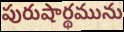
పురుషార్థమును